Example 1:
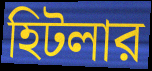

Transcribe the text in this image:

হিটলার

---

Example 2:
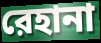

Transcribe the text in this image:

রেহানা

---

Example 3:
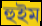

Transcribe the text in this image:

হুইম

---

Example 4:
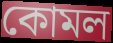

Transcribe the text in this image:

কোমল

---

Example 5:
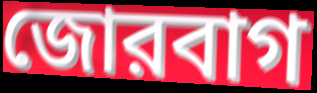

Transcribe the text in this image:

জোরবাগ